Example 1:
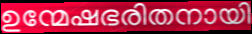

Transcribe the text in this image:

ഉന്മേഷഭരിതനായി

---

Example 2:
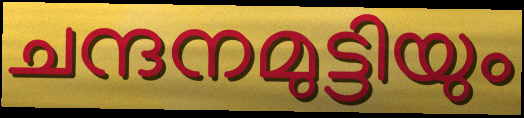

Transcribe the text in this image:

ചന്ദനമുട്ടിയും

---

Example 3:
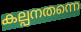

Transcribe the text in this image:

കല്പനതന്നെ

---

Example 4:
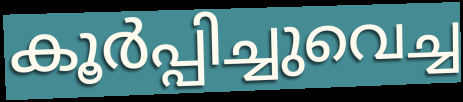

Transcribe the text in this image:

കൂർപ്പിച്ചുവെച്ച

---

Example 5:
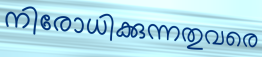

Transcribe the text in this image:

നിരോധിക്കുന്നതുവരെ